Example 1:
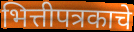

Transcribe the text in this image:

भित्तीपत्रकाचे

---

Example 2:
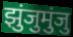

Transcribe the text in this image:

झुंजुमुंजु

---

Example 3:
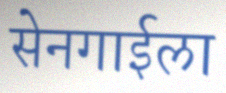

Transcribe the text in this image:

सेनगाईला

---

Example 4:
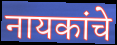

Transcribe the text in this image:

नायकांचे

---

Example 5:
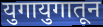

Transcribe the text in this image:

युगायुगातून